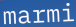
marmi